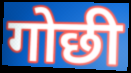
गोछी